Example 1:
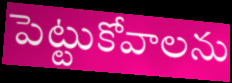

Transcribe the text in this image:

పెట్టుకోవాలను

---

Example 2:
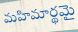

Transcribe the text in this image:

మహిమార్థమై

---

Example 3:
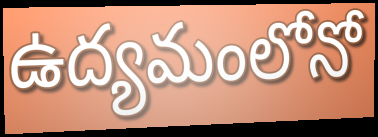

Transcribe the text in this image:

ఉద్యమంలోనో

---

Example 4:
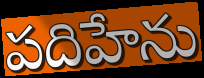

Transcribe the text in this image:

పదిహేను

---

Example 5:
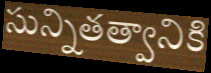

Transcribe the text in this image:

సున్నితత్వానికి